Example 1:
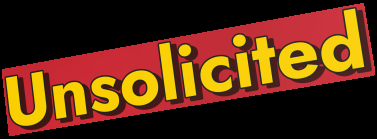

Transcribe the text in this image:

Unsolicited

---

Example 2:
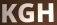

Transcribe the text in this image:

KGH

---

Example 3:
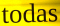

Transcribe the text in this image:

todas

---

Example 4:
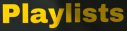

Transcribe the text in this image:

Playlists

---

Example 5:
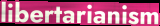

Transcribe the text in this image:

libertarianism